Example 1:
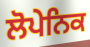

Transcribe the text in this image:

ਲੋਪੇਨਿਕ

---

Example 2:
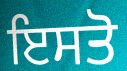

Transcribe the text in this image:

ਇਸਤੋ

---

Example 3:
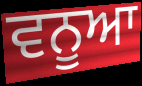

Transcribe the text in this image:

ਵਨੂਆ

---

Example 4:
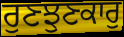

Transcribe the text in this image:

ਰੁਣਝੁਣਕਾਰੁ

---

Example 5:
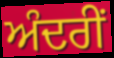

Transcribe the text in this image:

ਅੰਦਰੀਂ